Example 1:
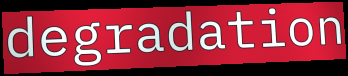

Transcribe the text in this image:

degradation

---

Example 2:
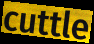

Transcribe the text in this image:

cuttle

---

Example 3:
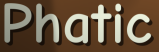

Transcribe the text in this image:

Phatic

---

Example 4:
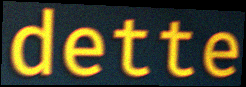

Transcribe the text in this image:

dette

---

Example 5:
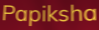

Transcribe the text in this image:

Papiksha